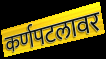
कर्णपटलावर